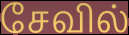
சேவில்